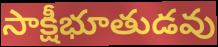
సాక్షీభూతుడవు